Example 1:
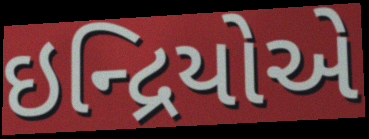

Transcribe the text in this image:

ઇન્દ્રિયોએ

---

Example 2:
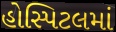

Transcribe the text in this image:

હોસ્પિટલમાં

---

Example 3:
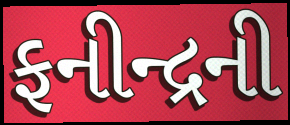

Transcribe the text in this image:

ફનીન્દ્રની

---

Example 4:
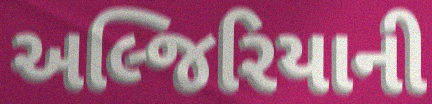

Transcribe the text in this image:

અલ્જિરિયાની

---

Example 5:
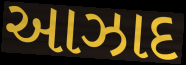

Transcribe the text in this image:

આઝાદ